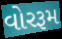
વોરરૂમ